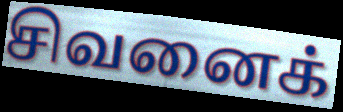
சிவனைக்